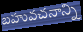
బహువచనాన్ని